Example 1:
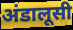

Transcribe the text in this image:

अंडालूसी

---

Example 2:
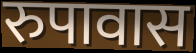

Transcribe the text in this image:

रुपावास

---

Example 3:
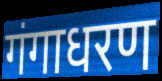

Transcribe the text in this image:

गंगाधरण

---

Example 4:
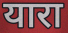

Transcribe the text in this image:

यारा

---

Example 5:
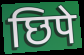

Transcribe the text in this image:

छिपे